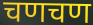
चणचण